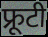
फ्रूटी